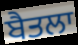
ਬੈਤਲਾ